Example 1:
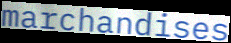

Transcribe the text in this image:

marchandises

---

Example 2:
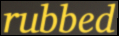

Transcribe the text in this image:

rubbed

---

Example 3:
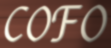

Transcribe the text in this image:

COFO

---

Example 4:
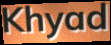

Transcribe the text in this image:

Khyad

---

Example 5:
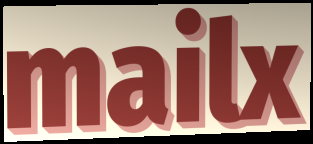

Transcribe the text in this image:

mailx